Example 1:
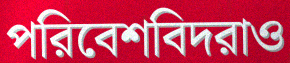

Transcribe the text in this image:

পরিবেশবিদরাও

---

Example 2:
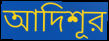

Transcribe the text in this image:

আদিশূর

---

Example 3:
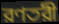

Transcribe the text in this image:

রণতরী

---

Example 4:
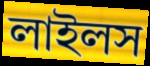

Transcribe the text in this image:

লাইলস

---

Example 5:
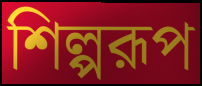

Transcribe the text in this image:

শিল্পরূপ